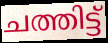
ചത്തിട്ട്